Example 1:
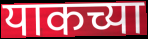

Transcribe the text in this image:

याकच्या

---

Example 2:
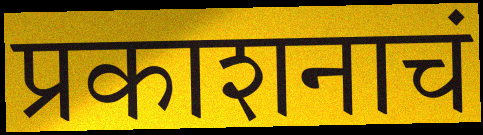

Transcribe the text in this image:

प्रकाशनाचं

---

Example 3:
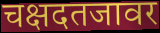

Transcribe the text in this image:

चक्षदतजावर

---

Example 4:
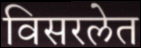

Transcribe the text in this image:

विसरलेत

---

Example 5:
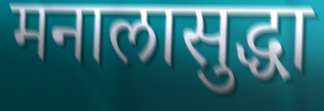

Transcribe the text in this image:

मनालासुद्धा